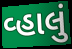
વ્હાલું